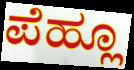
ಪೆಹ್ಲೂ